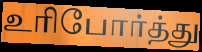
உரிபோர்த்து